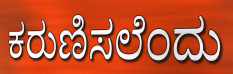
ಕರುಣಿಸಲೆಂದು